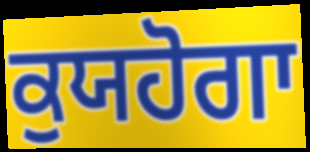
ਕੁਯਹੋਗਾ